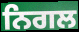
ਨਿਗਲ